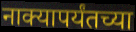
नाक्यापर्यंतच्या